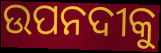
ଉପନଦୀକୁ